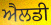
ਐਲਡੀ